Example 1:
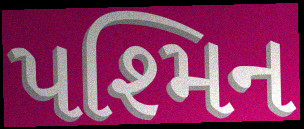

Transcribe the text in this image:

પશ્મિન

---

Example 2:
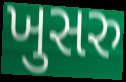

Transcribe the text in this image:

ખુસરુ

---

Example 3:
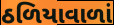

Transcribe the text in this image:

ઠળિયાવાળાં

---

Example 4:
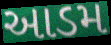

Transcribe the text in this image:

આડમ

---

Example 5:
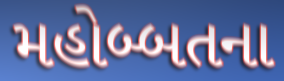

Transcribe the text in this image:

મહોબ્બતના